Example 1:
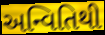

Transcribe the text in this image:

અન્વિતિથી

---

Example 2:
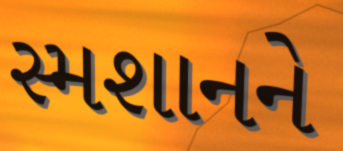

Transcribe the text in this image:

સ્મશાનને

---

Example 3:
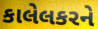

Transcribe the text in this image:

કાલેલકરને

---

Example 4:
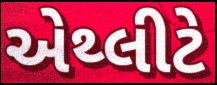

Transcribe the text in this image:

એથ્લીટે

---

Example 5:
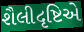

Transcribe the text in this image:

શૈલીદૃષ્ટિએ